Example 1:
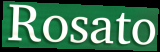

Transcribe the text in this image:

Rosato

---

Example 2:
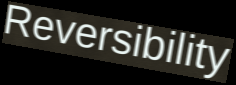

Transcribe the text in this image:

Reversibility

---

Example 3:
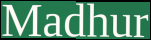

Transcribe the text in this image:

Madhur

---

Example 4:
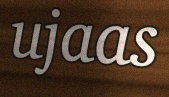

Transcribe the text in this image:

ujaas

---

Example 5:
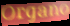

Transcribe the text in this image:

Organo